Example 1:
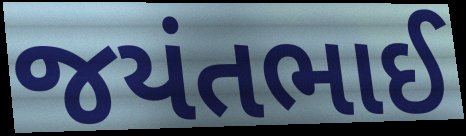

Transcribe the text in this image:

જયંતભાઈ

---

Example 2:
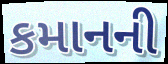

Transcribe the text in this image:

કમાનની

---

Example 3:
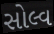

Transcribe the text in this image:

સોલ્વ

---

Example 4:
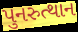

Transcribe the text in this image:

પુનરુત્થાન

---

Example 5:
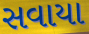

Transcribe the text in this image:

સવાયા